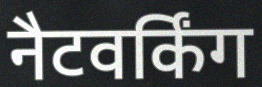
नैटवर्किंग